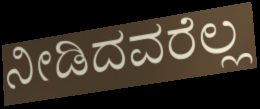
ನೀಡಿದವರೆಲ್ಲ